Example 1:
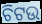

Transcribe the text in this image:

ଚିଟଉ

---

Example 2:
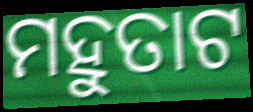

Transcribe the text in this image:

ମହୁତାଟ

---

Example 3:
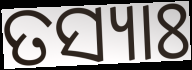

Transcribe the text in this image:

ତସ୍ୟାଃ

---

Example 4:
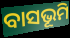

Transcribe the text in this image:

ବାସଭୂମି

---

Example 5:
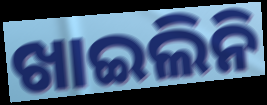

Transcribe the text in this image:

ଖାଇଲିନି